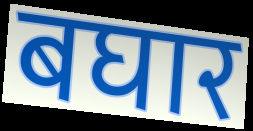
बघार